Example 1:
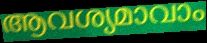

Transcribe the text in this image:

ആവശ്യമാവാം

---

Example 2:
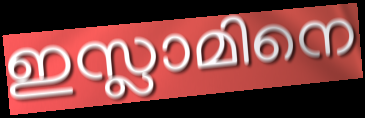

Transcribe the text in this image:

ഇസ്ലാമിനെ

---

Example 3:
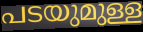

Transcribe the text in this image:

പടയുമുള്ള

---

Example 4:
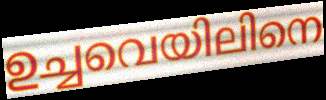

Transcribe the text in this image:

ഉച്ചവെയിലിനെ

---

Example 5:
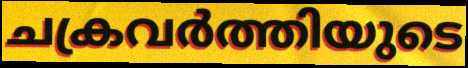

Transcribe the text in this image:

ചക്രവർത്തിയുടെ